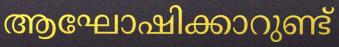
ആഘോഷിക്കാറുണ്ട്